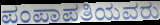
ಪಂಪಾಪತಿಯವರು